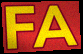
FA